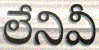
లేనివీ